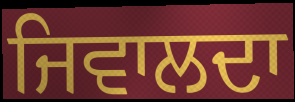
ਜਿਵਾਲਦਾ